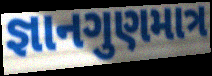
જ્ઞાનગુણમાત્ર